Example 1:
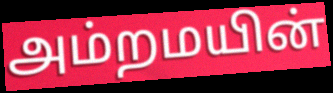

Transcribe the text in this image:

அம்றமயின்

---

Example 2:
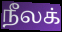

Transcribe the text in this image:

நீலக்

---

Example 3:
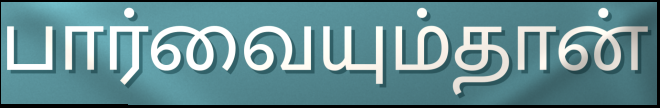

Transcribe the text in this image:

பார்வையும்தான்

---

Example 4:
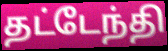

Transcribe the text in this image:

தட்டேந்தி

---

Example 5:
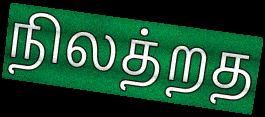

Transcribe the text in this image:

நிலத்றத